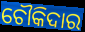
ଚୌକିଦାର